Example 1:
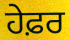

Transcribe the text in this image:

ਹੇਫ਼ਰ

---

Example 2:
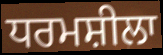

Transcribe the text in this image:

ਧਰਮਸ਼ੀਲਾ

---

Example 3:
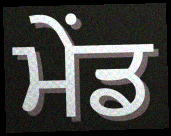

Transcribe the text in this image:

ਮੇਂਡ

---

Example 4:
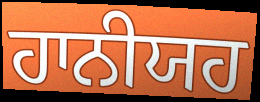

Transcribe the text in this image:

ਹਾਨੀਯਹ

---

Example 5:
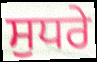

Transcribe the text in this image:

ਸੁਧਰੇ